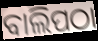
ବାଲିପଠା